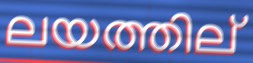
ലയത്തില്